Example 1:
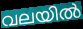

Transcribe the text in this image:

വലയിൽ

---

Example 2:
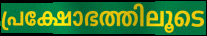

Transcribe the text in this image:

പ്രക്ഷോഭത്തിലൂടെ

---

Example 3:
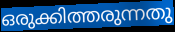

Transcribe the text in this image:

ഒരുക്കിത്തരുന്നതു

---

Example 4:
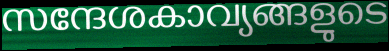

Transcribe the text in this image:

സന്ദേശകാവ്യങ്ങളുടെ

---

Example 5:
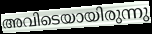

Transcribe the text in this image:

അവിടെയായിരുന്നു